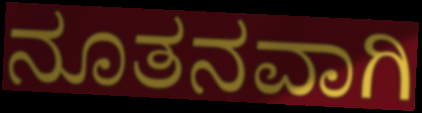
ನೂತನವಾಗಿ